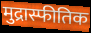
मुद्रास्फीतिक